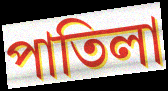
পাতিলা